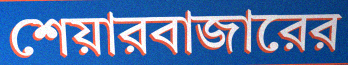
শেয়ারবাজারের